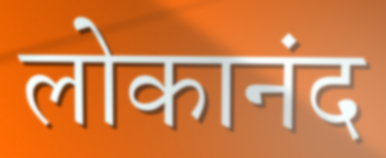
लोकानंद